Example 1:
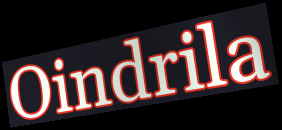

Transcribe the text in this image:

Oindrila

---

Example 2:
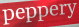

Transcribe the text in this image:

peppery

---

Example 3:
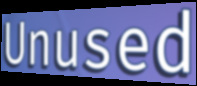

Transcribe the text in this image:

Unused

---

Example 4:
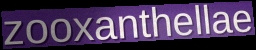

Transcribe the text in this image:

zooxanthellae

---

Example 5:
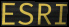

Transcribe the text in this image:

ESRI